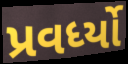
પ્રવર્ધ્યો